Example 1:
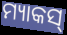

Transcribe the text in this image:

ମ୍ୟାକସ୍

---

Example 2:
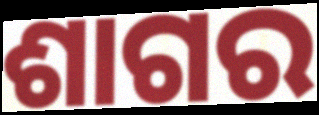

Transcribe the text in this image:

ଶାଗର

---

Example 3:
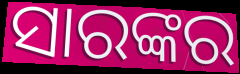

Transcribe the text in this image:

ସାରଙ୍କର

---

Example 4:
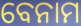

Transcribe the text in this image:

ବେନାମ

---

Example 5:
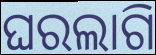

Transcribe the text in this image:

ଘରଲାଗି